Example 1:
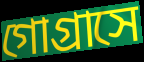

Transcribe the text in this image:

গোগ্রাসে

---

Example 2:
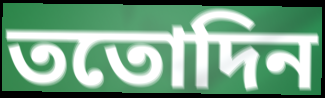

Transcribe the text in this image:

ততোদিন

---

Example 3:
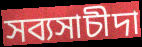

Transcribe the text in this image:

সব্যসাচীদা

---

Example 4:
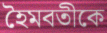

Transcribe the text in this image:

হৈমবতীকে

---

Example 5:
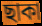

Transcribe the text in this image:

ছাকা